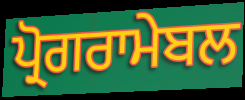
ਪ੍ਰੋਗਰਾਮੇਬਲ